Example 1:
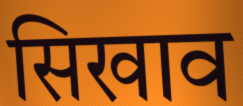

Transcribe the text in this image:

सिखाव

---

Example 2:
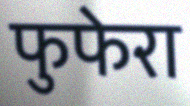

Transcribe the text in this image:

फुफेरा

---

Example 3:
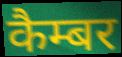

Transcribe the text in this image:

कैम्बर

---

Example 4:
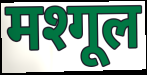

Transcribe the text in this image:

मश्गूल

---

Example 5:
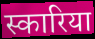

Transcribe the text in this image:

स्कारिया